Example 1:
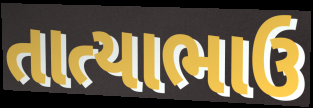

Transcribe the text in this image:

તાત્યાભાઉ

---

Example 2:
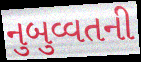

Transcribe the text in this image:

નુબુવ્વતની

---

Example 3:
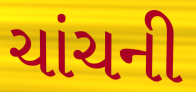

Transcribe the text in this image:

ચાંચની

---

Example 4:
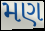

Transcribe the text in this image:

મણ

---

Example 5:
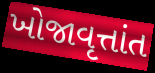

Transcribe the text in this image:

ખોજાવૃત્તાંત